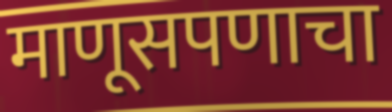
माणूसपणाचा